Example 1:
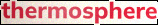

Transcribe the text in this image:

thermosphere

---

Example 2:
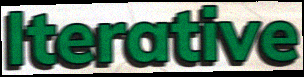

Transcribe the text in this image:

Iterative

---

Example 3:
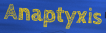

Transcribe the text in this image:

Anaptyxis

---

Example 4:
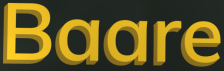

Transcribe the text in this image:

Baare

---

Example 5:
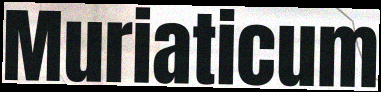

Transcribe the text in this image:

Muriaticum